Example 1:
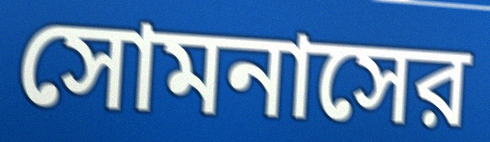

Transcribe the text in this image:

সোমনাসের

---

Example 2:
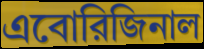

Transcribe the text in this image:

এবোরিজিনাল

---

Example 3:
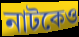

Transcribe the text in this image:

নাটকেও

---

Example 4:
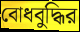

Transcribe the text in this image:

বোধবুদ্ধির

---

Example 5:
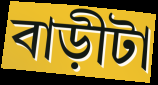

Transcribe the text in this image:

বাড়ীটা